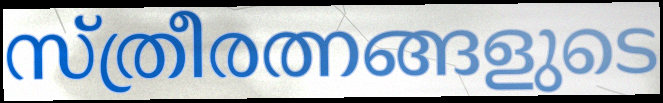
സ്ത്രീരത്നങ്ങളുടെ